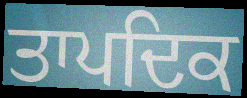
ਤਾਪਦਿਕ